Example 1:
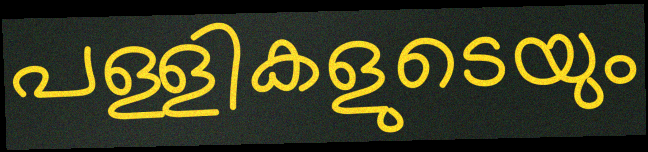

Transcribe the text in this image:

പള്ളികളുടെയും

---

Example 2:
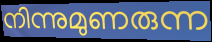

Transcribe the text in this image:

നിന്നുമുണരുന്ന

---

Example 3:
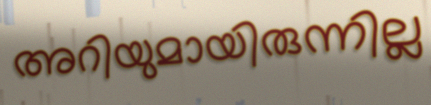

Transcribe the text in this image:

അറിയുമായിരുന്നില്ല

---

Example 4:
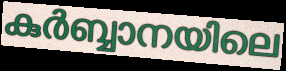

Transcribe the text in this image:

കുർബ്ബാനയിലെ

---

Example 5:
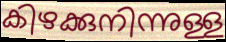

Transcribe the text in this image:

കിഴക്കുനിന്നുള്ള